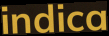
indica